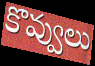
కొవ్వులు